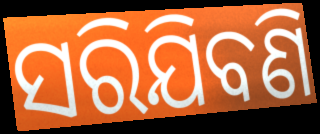
ସରିଯିବଣି